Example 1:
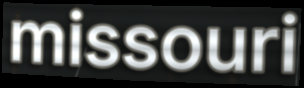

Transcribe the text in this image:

missouri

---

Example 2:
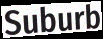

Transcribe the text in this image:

Suburb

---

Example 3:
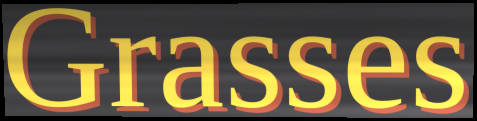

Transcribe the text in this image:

Grasses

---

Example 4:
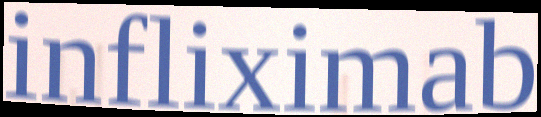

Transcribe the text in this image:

infliximab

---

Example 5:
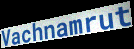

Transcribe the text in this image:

Vachnamrut